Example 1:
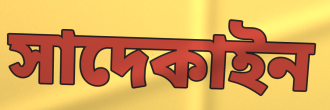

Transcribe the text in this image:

সাদেকাইন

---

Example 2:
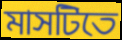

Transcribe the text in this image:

মাসটিতে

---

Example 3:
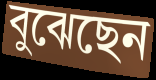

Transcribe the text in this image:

বুঝেছেন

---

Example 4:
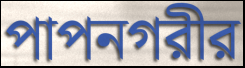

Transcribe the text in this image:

পাপনগরীর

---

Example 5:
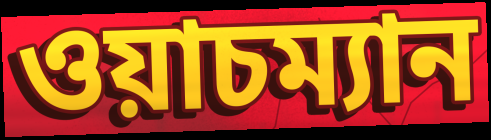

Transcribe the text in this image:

ওয়াচম্যান